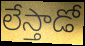
లేస్తాడో